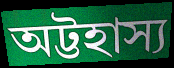
অট্টহাস্য